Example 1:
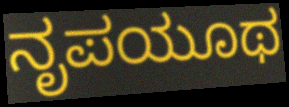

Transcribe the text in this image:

ನೃಪಯೂಥ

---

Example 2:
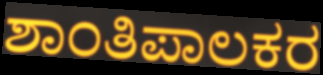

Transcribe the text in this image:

ಶಾಂತಿಪಾಲಕರ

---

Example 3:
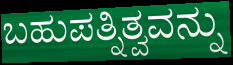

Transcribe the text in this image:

ಬಹುಪತ್ನಿತ್ವವನ್ನು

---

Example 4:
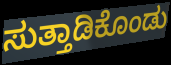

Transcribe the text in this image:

ಸುತ್ತಾಡಿಕೊಂಡು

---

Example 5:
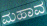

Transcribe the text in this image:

ಮಹಾವ